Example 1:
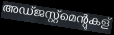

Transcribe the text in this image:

അഡ്ജസ്റ്റ്മെന്റുകള്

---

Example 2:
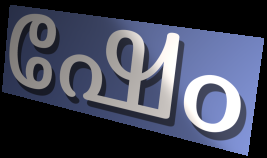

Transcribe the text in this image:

ഷേം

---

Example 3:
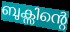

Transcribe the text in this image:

ബുക്സിന്റെ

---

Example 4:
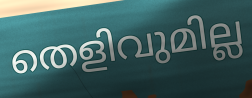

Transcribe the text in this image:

തെളിവുമില്ല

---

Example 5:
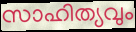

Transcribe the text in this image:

സാഹിത്യവും